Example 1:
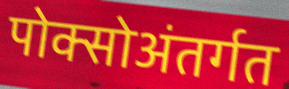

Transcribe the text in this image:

पोक्सोअंतर्गत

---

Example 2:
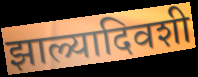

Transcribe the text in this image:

झाल्यादिवशी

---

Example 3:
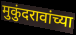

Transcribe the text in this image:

मुकुंदरावांच्या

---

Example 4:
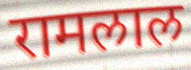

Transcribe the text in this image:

रामलाल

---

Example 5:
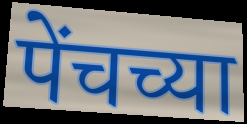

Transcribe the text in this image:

पेंचच्या